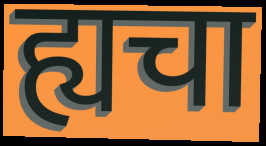
ह्यचा